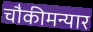
चौकीमन्यार